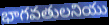
భాగవతులనియు